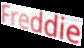
Freddie